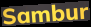
Sambur